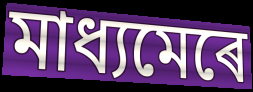
মাধ্যমেৰে